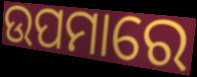
ଉପମାରେ